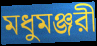
মধুমঞ্জরী